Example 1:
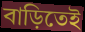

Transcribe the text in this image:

বাড়িতেই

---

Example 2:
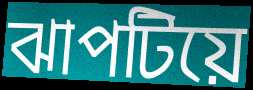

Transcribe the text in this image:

ঝাপটিয়ে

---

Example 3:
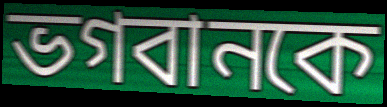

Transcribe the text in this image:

ভগবানকে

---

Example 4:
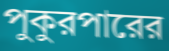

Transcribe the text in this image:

পুকুরপারের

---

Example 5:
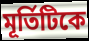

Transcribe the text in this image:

মূর্তিটিকে